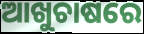
ଆଖୁଚାଷରେ